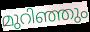
മുറിഞ്ഞും